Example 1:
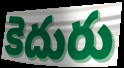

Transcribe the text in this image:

కెదురు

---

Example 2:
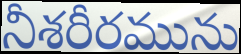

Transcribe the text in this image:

నీశరీరమును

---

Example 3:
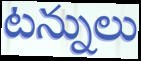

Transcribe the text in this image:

టన్నులు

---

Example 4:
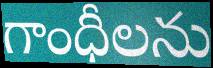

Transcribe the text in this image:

గాంధీలను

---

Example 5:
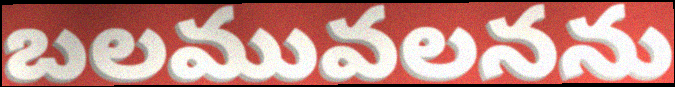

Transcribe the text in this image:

బలమువలనను